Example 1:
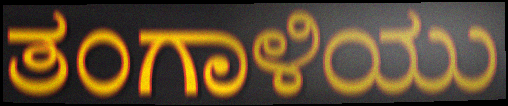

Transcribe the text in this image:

ತಂಗಾಳಿಯು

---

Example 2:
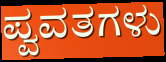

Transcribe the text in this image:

ಪ್ವವತಗಳು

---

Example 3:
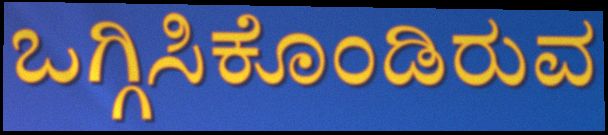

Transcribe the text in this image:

ಒಗ್ಗಿಸಿಕೊಂಡಿರುವ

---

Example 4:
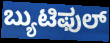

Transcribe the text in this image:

ಬ್ಯುಟಿಫುಲ್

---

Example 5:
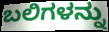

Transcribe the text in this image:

ಬಲಿಗಳನ್ನು